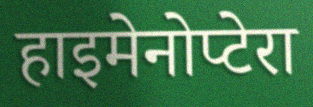
हाइमेनोप्टेरा